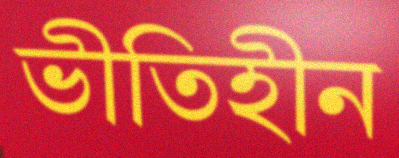
ভীতিহীন